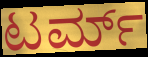
ಟರ್ಮ್